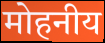
मोहनीय